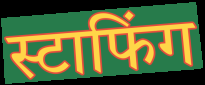
स्टाफिंग